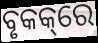
ବୃକକ୍‌ରେ